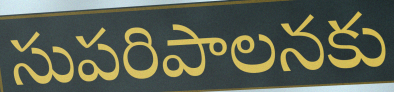
సుపరిపాలనకు